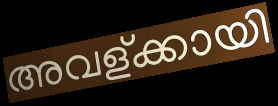
അവള്ക്കായി